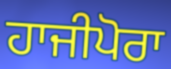
ਹਾਜੀਪੋਰਾ